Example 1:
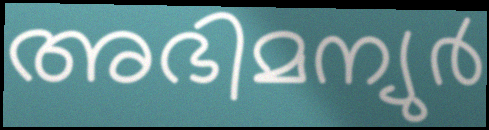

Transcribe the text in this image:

അഭിമന്യുർ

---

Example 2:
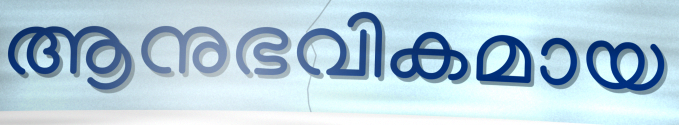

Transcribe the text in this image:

ആനുഭവികമായ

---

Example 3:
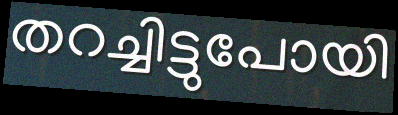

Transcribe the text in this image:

തറച്ചിട്ടുപോയി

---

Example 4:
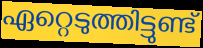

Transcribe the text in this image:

ഏറ്റെടുത്തിട്ടുണ്ട്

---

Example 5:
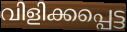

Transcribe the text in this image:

വിളിക്കപ്പെട്ട